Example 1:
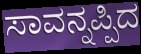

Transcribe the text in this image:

ಸಾವನ್ನಪ್ಪಿದ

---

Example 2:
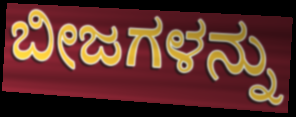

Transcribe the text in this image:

ಬೀಜಗಳನ್ನು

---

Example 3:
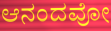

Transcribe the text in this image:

ಆನಂದವೋ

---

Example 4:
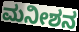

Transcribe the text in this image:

ಮನೀಶನ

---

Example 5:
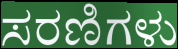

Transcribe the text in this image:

ಸರಣಿಗಳು